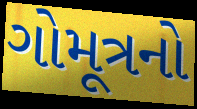
ગોમૂત્રનો